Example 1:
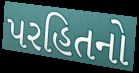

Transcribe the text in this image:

પરહિતનો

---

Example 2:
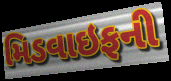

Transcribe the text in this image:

મિડવાઇફની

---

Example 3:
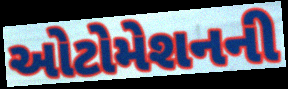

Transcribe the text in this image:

ઓટોમેશનની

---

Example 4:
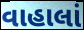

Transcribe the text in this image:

વાહાલાં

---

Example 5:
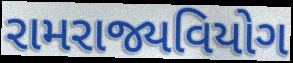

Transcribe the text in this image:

રામરાજ્યવિયોગ